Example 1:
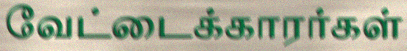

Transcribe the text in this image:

வேட்டைக்காரர்கள்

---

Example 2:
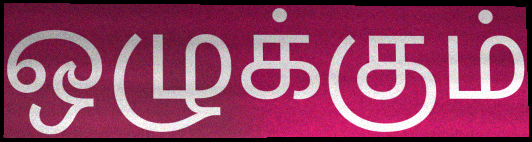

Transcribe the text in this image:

ஒழுக்கும்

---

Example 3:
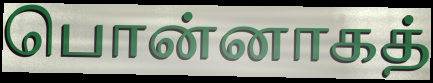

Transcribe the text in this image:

பொன்னாகத்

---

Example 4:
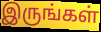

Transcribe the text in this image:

இருங்கள்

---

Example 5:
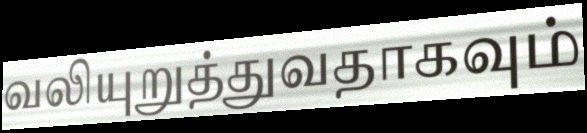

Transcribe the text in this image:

வலியுறுத்துவதாகவும்